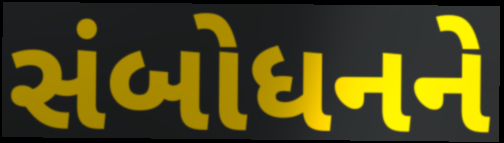
સંબોધનને